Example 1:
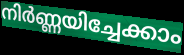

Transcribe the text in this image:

നിർണ്ണയിച്ചേക്കാം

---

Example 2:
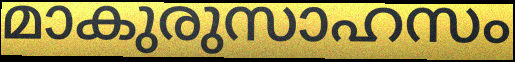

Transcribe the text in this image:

മാകുരുസാഹസം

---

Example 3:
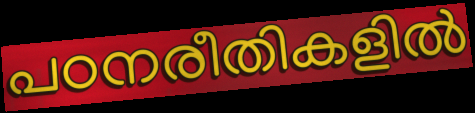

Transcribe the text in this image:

പഠനരീതികളിൽ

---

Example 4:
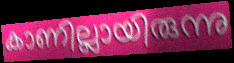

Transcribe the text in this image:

കാണില്ലായിരുന്നു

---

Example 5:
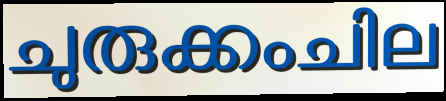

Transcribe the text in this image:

ചുരുക്കംചില